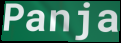
Panja